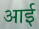
आई